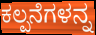
ಕಲ್ಪನೆಗಳನ್ನ